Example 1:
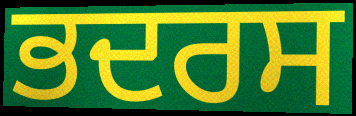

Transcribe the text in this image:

ਭਦਰਸ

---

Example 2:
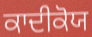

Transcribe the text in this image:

ਕਾਦੀਕੋਯ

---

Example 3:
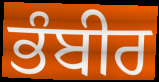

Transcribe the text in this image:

ਭੰਬੀਰ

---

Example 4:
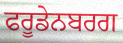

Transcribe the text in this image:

ਫਰੂਡੇਨਬਰਗ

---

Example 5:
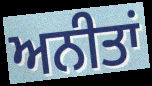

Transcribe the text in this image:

ਅਨੀਤਾਂ